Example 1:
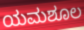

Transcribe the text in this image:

ಯಮಶೂಲ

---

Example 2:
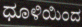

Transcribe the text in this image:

ಧೂಳಿಯಿಂದ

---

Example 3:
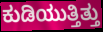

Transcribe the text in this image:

ಕುಡಿಯುತ್ತಿತ್ತು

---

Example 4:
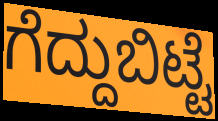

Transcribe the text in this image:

ಗೆದ್ದುಬಿಟ್ಟೆ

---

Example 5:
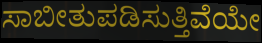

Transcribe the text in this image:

ಸಾಬೀತುಪಡಿಸುತ್ತಿವೆಯೇ